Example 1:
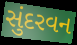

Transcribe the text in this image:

સુંદરવન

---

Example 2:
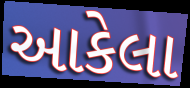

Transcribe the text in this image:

આકેલા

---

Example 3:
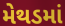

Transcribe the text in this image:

મેથડમાં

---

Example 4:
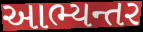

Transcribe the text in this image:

આભ્યન્તર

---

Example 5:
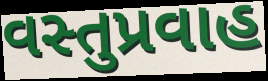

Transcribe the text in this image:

વસ્તુપ્રવાહ